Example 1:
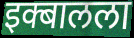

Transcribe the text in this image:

इक्बालला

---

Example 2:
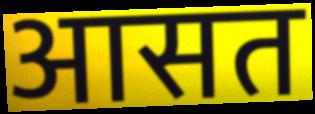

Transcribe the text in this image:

आसत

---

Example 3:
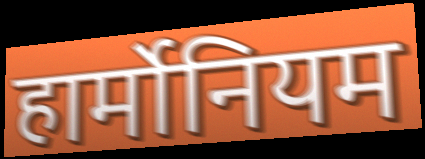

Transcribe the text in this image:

हार्मोनियम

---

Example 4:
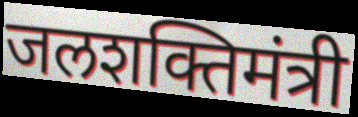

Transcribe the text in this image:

जलशक्तिमंत्री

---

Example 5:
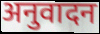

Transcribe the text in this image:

अनुवादन